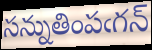
సన్నుతింపఁగన్